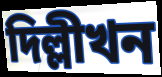
দিল্লীখন